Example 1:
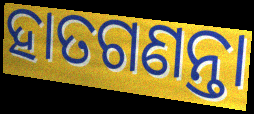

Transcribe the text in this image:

ହାତଗଣନ୍ତା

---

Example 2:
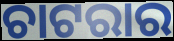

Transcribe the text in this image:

ଚାଟରାର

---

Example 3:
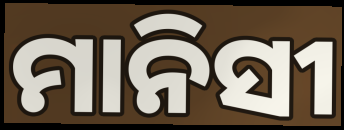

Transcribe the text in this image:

ମାନିସୀ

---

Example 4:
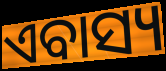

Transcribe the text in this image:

ଏବାସ୍ୟ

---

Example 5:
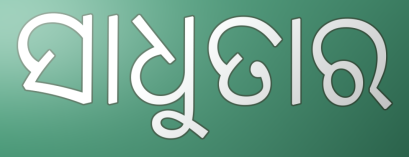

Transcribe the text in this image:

ସାଧୁତାର